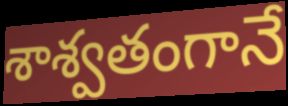
శాశ్వతంగానే